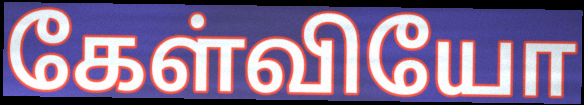
கேள்வியோ